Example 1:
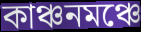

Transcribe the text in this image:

কাঞ্চনমঞ্চে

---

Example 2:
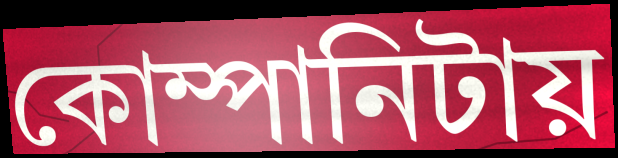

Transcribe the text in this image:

কোম্পানিটায়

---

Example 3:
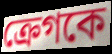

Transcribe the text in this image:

ক্রেগকে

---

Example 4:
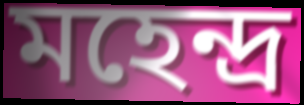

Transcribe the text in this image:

মহেন্দ্র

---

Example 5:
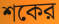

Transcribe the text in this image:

শকের